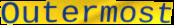
Outermost